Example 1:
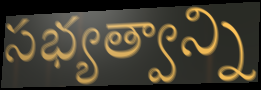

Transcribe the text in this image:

సభ్యత్వాన్ని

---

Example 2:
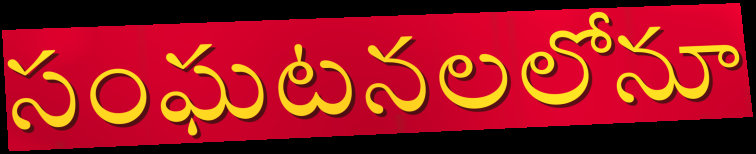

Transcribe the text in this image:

సంఘటనలలోనూ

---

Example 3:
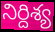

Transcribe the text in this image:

నిర్దిశ్య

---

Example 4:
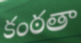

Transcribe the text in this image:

కంఠతా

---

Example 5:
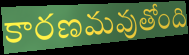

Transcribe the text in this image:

కారణమవుతోంది